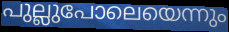
പുല്ലുപോലെയെന്നും